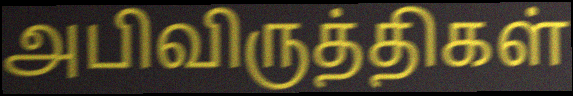
அபிவிருத்திகள்